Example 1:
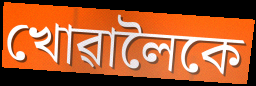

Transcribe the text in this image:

খোৱালৈকে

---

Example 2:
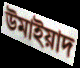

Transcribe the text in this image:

উমাইয়াদ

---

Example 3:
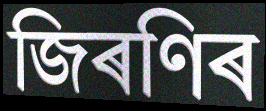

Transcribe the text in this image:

জিৰণিৰ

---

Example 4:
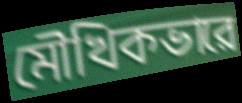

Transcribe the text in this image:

মৌখিকভাৱে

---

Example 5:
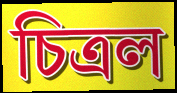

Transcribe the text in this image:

চিত্ৰল